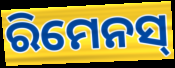
ରିମେନସ୍